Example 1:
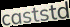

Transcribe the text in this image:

caststd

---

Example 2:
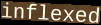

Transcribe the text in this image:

inflexed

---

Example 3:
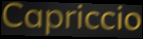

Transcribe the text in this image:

Capriccio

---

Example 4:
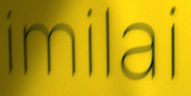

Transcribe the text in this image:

imilai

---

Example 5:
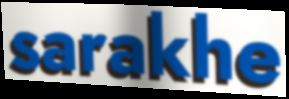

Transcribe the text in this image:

sarakhe